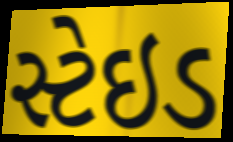
સ્ટેઇડ